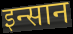
इन्सान